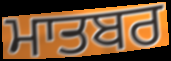
ਮਾਤਬਰ